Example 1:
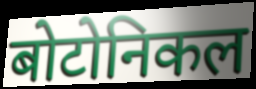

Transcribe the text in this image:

बोटोनिकल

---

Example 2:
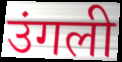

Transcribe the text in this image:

उंगली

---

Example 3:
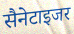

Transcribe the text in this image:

सैनेटाइजर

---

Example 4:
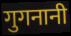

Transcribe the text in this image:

गुगनानी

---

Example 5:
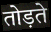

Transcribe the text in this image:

तोड़ते